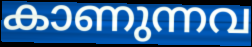
കാണുന്നവ